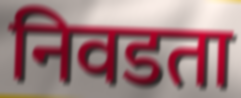
निवडता